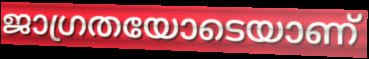
ജാഗ്രതയോടെയാണ്